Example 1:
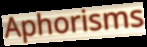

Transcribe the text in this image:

Aphorisms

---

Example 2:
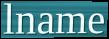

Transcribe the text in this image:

lname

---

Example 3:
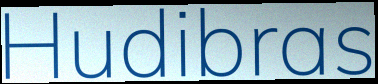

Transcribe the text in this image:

Hudibras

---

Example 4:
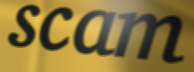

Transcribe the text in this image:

scam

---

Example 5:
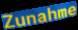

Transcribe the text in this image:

Zunahme